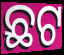
ଛଟ